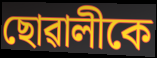
ছোৱালীকে